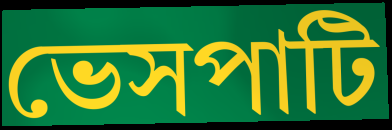
ভেসপাটি